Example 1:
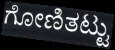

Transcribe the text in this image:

ಗೋಣಿತಟ್ಟು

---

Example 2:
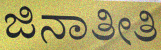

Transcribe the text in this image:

ಜಿನಾತೀತಿ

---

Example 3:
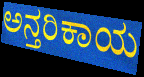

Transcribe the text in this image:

ಅನ್ತರಿಕಾಯ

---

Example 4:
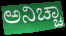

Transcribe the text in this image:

ಅನಿಚ್ಚಾ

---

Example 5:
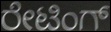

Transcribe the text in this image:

ರೇಟಿಂಗ್